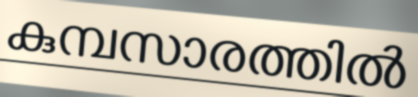
കുമ്പസാരത്തിൽ